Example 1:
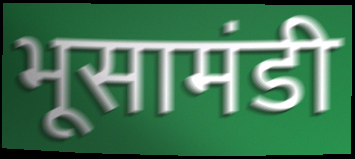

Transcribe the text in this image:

भूसामंडी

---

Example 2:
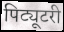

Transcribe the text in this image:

पिट्यूटरी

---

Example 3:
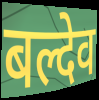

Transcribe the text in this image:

बल्देव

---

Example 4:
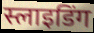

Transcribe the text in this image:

स्लाइडिंग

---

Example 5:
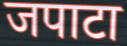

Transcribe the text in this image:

जपाटा